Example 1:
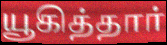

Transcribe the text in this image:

யூகித்தார்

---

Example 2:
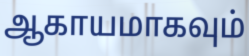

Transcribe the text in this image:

ஆகாயமாகவும்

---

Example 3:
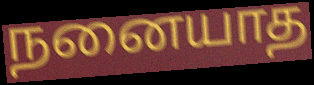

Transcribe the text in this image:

நனையாத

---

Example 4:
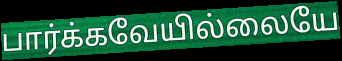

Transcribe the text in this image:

பார்க்கவேயில்லையே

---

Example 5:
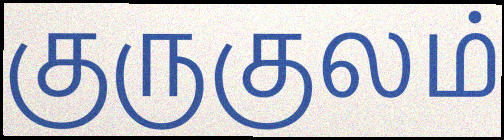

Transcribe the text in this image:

குருகுலம்